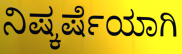
ನಿಷ್ಕರ್ಷೆಯಾಗಿ